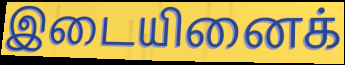
இடையினைக்